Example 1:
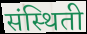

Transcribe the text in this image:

संस्थिती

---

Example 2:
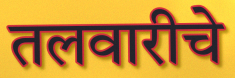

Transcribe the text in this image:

तलवारीचे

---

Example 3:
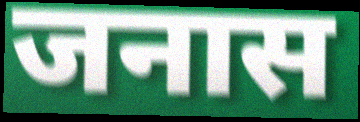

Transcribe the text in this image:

जनास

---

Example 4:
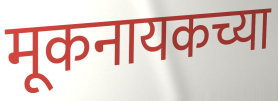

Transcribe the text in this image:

मूकनायकच्या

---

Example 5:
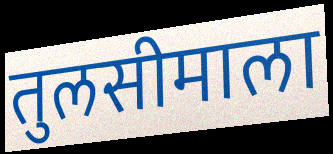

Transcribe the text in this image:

तुलसीमाला